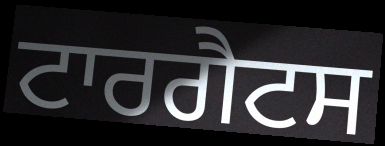
ਟਾਰਗੈਟਸ